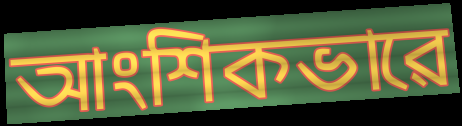
আংশিকভাৱে